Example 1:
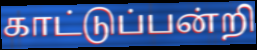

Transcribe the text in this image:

காட்டுப்பன்றி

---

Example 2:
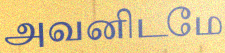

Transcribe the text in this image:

அவனிடமே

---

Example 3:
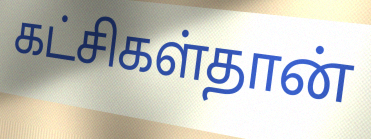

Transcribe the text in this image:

கட்சிகள்தான்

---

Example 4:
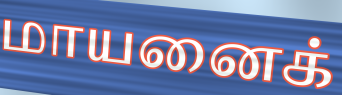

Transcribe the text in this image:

மாயனைக்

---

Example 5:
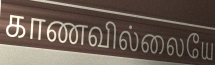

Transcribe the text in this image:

காணவில்லையே